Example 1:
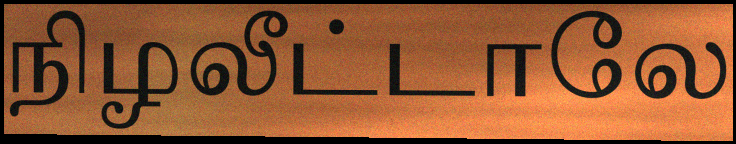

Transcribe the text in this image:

நிழலீட்டாலே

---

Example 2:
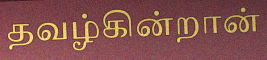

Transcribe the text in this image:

தவழ்கின்றான்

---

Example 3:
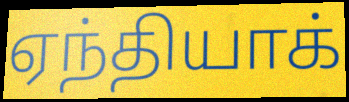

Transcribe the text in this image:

ஏந்தியாக்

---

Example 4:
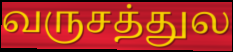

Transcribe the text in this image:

வருசத்துல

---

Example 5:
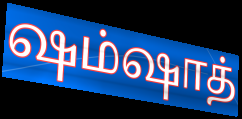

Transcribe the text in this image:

ஷம்ஷாத்